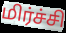
மிர்ச்சி